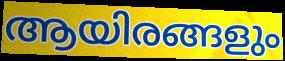
ആയിരങ്ങളും